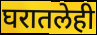
घरातलेही